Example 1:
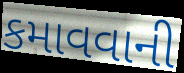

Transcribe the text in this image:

કમાવવાની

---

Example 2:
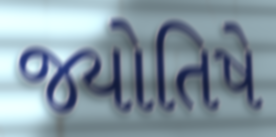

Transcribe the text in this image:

જ્યોતિષે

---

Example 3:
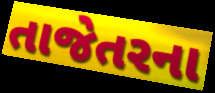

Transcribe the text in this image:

તાજેતરના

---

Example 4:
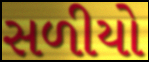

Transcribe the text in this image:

સળીયો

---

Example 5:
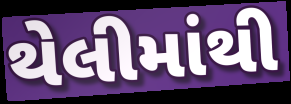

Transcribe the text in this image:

થેલીમાંથી